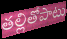
తల్లితోపాటు